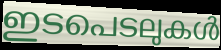
ഇടപെടലുകൾ